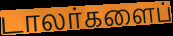
டாலர்களைப்